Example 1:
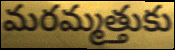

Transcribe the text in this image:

మరమ్మత్తుకు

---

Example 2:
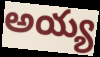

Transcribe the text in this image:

అయ్య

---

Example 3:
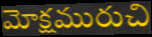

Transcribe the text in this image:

మోక్షమురుచి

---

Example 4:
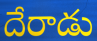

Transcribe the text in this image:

దేరాడు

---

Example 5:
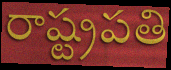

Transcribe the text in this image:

రాష్ట్రపతి